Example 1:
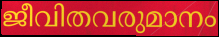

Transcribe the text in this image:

ജീവിതവരുമാനം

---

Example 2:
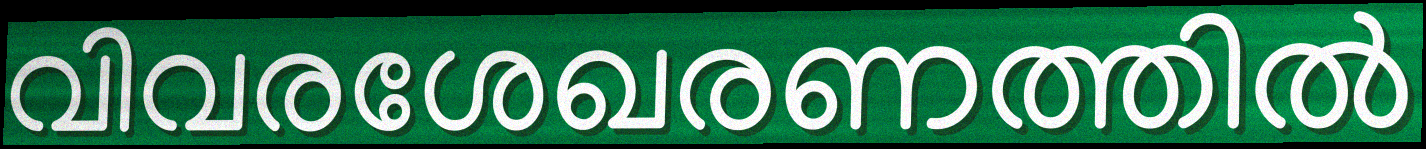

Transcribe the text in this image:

വിവരശേഖരണത്തിൽ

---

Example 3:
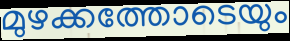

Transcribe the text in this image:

മുഴക്കത്തോടെയും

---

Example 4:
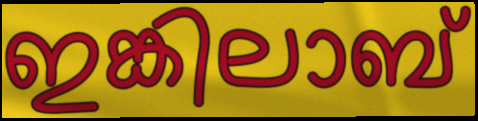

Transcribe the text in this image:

ഇങ്കിലാബ്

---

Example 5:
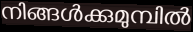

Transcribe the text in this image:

നിങ്ങൾക്കുമുമ്പിൽ